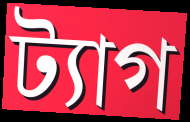
ট্যাগ